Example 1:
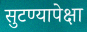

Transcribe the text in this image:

सुटण्यापेक्षा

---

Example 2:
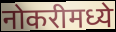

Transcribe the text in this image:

नोकरीमध्ये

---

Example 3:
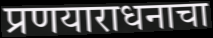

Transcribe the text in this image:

प्रणयाराधनाचा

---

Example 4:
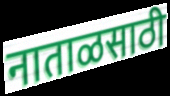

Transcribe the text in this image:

नाताळसाठी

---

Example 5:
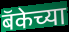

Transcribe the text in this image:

बॅकेच्या